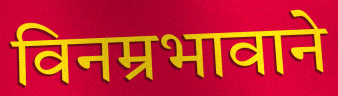
विनम्रभावाने